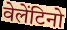
वेलेंटिनो